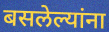
बसलेल्यांना